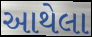
આથેલા